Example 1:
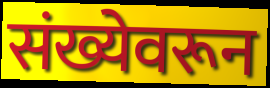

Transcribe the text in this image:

संख्येवरून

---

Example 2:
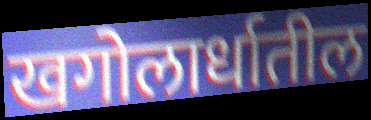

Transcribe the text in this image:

खगोलार्धातील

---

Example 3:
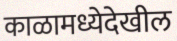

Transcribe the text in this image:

काळामध्येदेखील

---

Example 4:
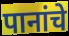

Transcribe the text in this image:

पानांचे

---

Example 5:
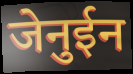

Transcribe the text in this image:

जेनुईन